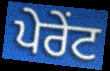
ਪੇਰੇਂਟ